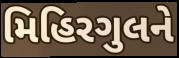
મિહિરગુલને